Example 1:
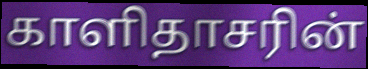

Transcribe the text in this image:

காளிதாசரின்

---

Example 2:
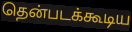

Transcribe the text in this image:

தென்படக்கூடிய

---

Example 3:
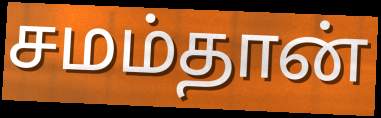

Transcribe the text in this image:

சமம்தான்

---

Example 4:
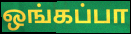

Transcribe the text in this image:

ஒங்கப்பா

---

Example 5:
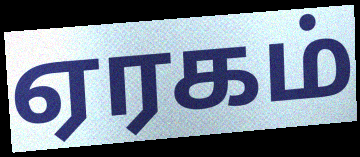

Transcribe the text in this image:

ஏரகம்